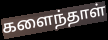
களைந்தாள்